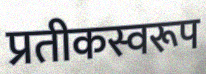
प्रतीकस्वरूप